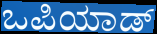
ಒಪಿಯಾಡ್